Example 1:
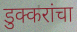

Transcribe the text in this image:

डुक्करांचा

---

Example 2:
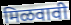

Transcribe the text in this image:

मिळवावी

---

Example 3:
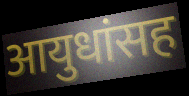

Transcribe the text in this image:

आयुधांसह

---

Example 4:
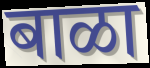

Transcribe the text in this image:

बाळा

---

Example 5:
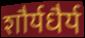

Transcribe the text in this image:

शौर्यधैर्य